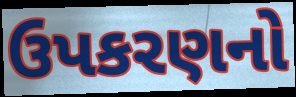
ઉપકરણનો